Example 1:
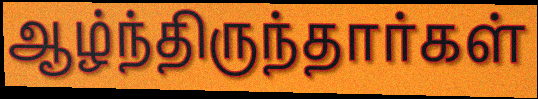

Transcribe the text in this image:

ஆழ்ந்திருந்தார்கள்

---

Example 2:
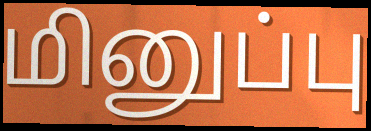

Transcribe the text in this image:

மினுப்பு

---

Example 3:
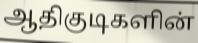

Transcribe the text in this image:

ஆதிகுடிகளின்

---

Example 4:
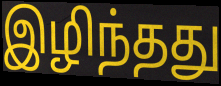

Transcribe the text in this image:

இழிந்தது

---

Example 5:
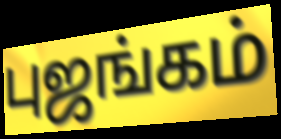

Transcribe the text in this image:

புஜங்கம்